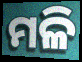
ମଳି